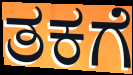
ತಕಗೆ